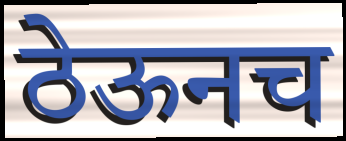
ठेऊनच